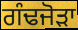
ਗੰਢਜੋੜਾ